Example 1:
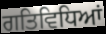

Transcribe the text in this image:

ਗਤਿਵਿਧਿਆਂ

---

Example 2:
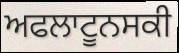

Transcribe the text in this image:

ਅਫਲਾਟੂਨਸਕੀ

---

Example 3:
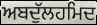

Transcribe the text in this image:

ਅਬਦੁੱਲਹਮਿਦ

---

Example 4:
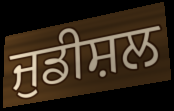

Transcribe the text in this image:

ਜੁਡੀਸ਼ਲ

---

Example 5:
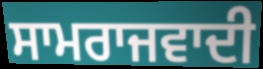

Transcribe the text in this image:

ਸਾਮਰਾਜਵਾਦੀ